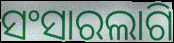
ସଂସାରଲାଗି